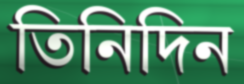
তিনিদিন